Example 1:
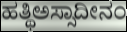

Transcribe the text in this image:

ಹತ್ಥಿಅಸ್ಸಾದೀನಂ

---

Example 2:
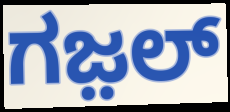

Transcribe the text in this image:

ಗಜ಼ಲ್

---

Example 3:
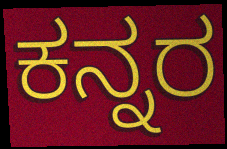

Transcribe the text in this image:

ಕನ್ನರ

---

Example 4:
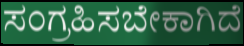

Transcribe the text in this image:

ಸಂಗ್ರಹಿಸಬೇಕಾಗಿದೆ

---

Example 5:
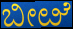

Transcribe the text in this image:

ಬೀೞೆ